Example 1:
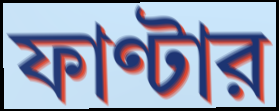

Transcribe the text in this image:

ফাণ্টার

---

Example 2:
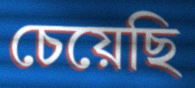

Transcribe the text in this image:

চেয়েছি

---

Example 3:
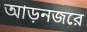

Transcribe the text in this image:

আড়নজরে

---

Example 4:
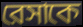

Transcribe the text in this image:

রেসাকে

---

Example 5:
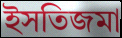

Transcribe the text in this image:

ইসতিজমা